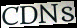
CDNs